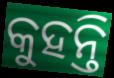
କୁହନ୍ତି